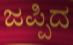
ಜಪ್ಪಿದ